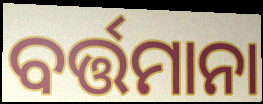
ବର୍ତ୍ତମାନା